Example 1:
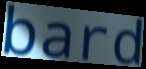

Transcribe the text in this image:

bard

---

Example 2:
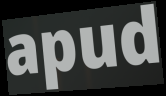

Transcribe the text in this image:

apud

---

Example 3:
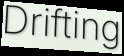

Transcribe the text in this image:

Drifting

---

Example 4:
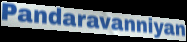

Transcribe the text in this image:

Pandaravanniyan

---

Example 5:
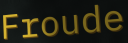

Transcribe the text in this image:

Froude